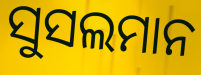
ସୁସଲମାନ